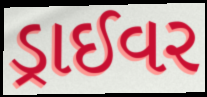
ડ્રાઈવર